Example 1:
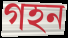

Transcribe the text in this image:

গহন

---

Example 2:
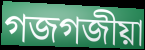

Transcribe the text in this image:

গজগজীয়া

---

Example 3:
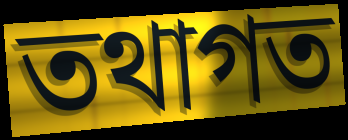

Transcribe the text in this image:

তথাগত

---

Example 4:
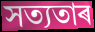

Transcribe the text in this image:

সত্যতাৰ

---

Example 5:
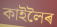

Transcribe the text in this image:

কাইলৈৰ